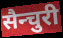
सैन्चुरी